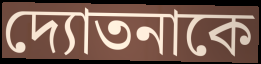
দ্যোতনাকে